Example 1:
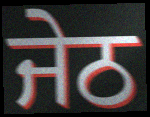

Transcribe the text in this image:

ਜੇਠ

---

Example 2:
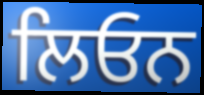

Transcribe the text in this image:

ਲਿਓਨ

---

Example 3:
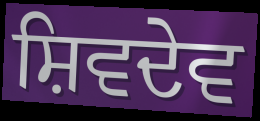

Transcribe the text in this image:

ਸ਼ਿਵਦੇਵ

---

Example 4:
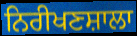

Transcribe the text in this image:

ਨਿਰੀਖਣਸ਼ਾਲਾ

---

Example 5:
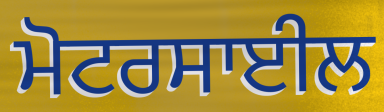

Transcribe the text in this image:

ਮੋਟਰਸਾਈਲ